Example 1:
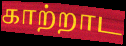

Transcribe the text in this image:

காற்றாட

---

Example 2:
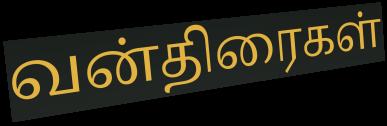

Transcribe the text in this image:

வன்திரைகள்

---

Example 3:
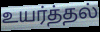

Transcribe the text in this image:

உயர்த்தல்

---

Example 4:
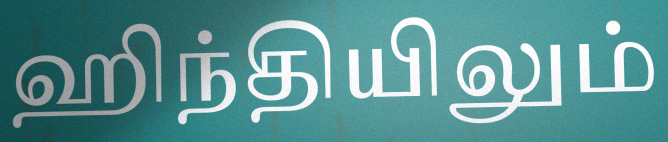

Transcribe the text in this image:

ஹிந்தியிலும்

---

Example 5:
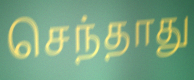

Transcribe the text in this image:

செந்தாது